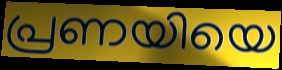
പ്രണയിയെ